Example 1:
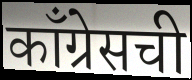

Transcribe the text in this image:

काँग्रेसची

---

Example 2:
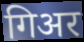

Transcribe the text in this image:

गिअर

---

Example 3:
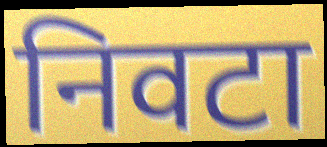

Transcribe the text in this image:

निवटा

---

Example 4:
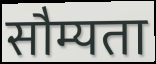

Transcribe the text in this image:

सौम्यता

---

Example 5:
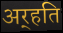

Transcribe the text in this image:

अर्हति